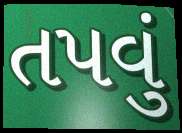
તપવું